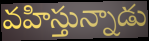
వహిస్తున్నాడు